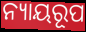
ନ୍ୟାୟରୂପ